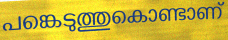
പങ്കെടുത്തുകൊണ്ടാണ്